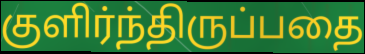
குளிர்ந்திருப்பதை